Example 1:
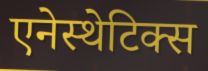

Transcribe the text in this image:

एनेस्थेटिक्स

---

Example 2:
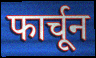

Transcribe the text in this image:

फार्चून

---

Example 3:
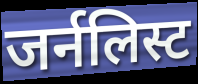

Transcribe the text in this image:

जर्नलिस्ट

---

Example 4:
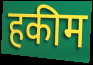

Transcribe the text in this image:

हकीम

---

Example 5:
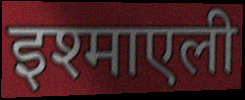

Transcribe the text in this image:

इश्माएली